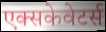
एक्सकेवेटर्स